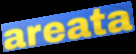
areata